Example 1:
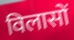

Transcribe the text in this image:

विलासों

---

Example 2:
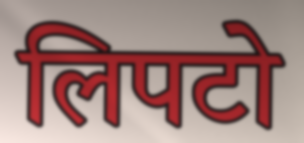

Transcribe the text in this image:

लिपटो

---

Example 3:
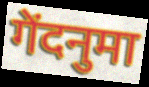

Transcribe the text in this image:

गेंदनुमा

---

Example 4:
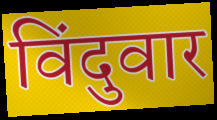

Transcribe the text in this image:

विंदुवार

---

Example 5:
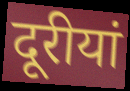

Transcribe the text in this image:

दूरीयां